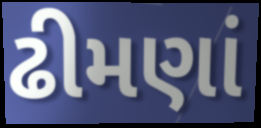
ઢીમણાં